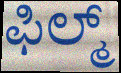
ಫಿಲ್ಮ್